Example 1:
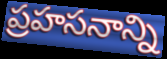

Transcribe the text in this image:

ప్రహసనాన్ని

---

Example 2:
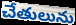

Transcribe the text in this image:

చేతులును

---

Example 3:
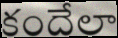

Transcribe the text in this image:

కందేలా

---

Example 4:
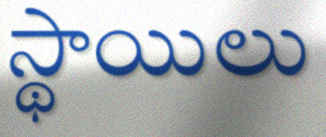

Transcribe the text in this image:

స్థాయిలు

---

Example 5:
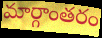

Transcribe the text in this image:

మార్గాంతరం